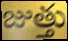
జుత్తు